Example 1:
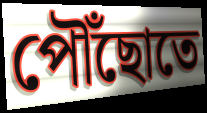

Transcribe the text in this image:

পৌঁছোতে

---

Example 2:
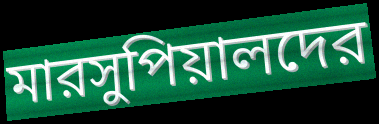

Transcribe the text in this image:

মারসুপিয়ালদের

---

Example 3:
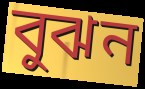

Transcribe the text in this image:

বুঝন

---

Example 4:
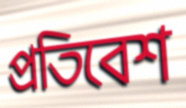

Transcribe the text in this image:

প্রতিবেশ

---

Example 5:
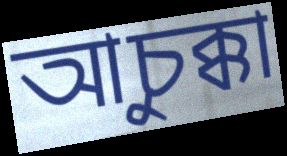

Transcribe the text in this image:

আচুক্কা